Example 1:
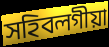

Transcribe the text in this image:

সহিবলগীয়া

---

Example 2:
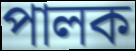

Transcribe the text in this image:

পালক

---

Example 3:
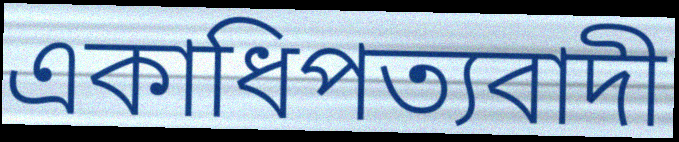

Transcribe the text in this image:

একাধিপত্যবাদী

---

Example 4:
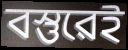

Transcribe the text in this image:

বস্তুৱেই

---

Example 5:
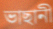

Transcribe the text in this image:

ভাছানী